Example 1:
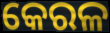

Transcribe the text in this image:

କେରଳ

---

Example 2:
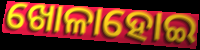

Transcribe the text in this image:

ଖୋଳାହୋଇ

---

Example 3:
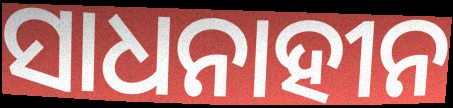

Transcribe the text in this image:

ସାଧନାହୀନ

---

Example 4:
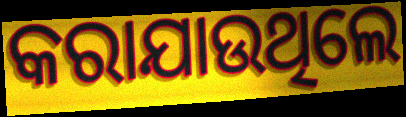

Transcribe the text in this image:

କରାଯାଉଥିଲେ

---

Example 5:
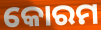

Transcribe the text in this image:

କୋରମ